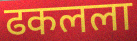
ढकलला